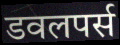
डवलपर्स